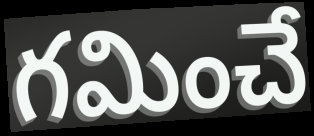
గమించే